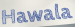
Hawala